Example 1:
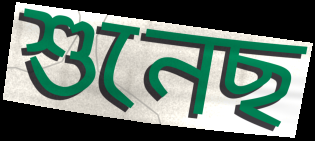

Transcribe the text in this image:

শুনেছ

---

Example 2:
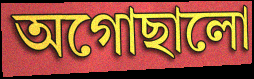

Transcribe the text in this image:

অগোছালো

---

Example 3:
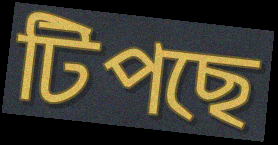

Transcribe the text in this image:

টিপছে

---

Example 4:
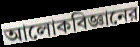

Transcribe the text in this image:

আলোকবিজ্ঞানের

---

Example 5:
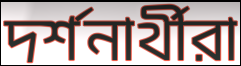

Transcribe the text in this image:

দর্শনার্থীরা